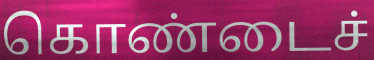
கொண்டைச்